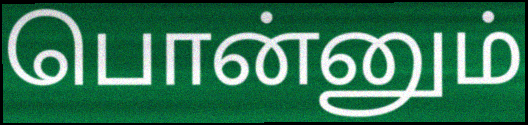
பொன்னும்